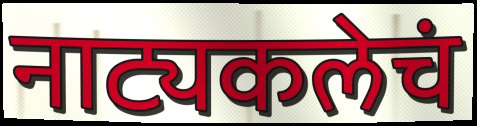
नाट्यकलेचं